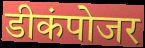
डीकंपोजर